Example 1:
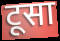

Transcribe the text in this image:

टूसा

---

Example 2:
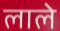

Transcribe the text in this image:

लाले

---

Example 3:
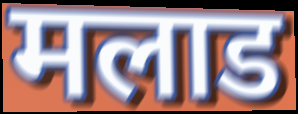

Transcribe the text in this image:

मलाड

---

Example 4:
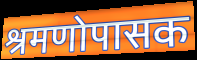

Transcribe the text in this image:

श्रमणोपासक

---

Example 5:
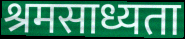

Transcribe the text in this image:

श्रमसाध्यता